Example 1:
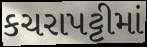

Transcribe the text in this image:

કચરાપટ્ટીમાં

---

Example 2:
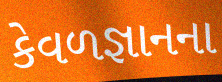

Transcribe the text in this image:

કેવળજ્ઞાનના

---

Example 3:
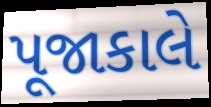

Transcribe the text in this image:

પૂજાકાલે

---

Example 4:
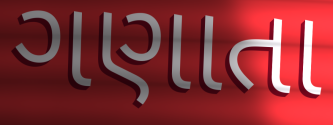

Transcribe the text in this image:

ગણાતા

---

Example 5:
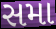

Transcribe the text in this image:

સમા